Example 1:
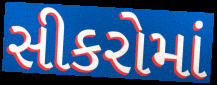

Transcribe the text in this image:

સીકરોમાં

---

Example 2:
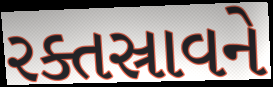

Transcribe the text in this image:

રક્તસ્રાવને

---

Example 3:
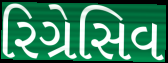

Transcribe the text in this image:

રિગ્રેસિવ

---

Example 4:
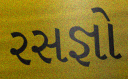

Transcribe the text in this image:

રસજ્ઞો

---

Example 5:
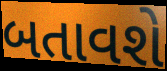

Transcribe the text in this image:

બતાવશે